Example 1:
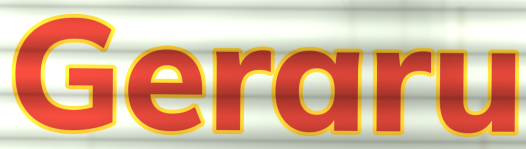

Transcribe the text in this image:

Geraru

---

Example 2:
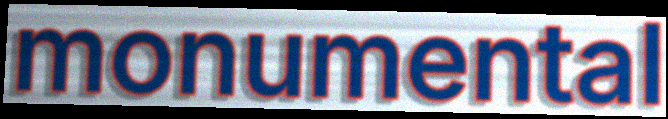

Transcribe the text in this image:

monumental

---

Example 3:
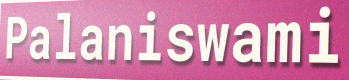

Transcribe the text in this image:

Palaniswami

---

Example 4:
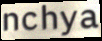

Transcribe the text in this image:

nchya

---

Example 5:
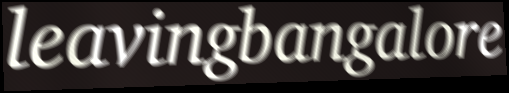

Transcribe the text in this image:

leavingbangalore